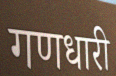
गणधारी